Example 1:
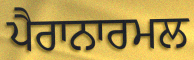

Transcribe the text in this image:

ਪੈਰਾਨਾਰਮਲ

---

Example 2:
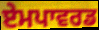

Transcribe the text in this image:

ਏਮਪਾਵਰਡ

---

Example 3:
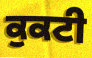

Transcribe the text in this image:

ਕੁਕਟੀ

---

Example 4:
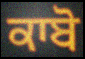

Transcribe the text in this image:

ਕਾਬੋ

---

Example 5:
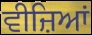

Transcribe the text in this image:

ਵੀਜ਼ਿਆਂ